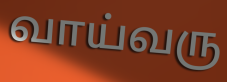
வாய்வரு